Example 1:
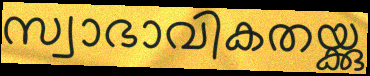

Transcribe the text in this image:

സ്വാഭാവികതയ്ക്കു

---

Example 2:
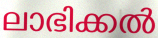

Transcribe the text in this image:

ലാഭിക്കൽ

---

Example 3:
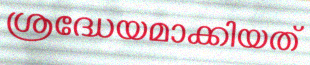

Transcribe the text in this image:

ശ്രദ്ധേയമാക്കിയത്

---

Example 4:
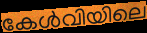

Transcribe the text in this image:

കേൾവിയിലെ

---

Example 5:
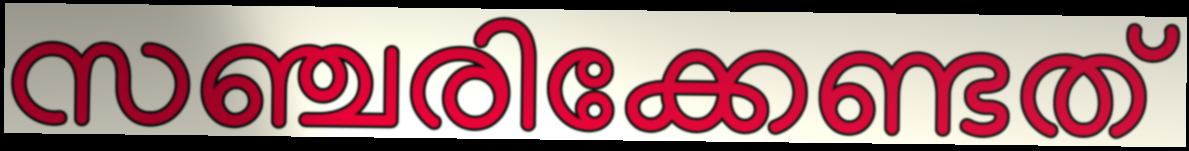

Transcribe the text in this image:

സഞ്ചരിക്കേണ്ടത്